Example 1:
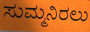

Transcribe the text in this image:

ಸುಮ್ಮನಿರಲು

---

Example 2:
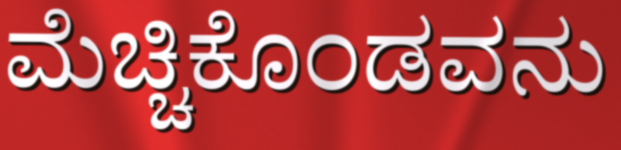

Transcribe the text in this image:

ಮೆಚ್ಚಿಕೊಂಡವನು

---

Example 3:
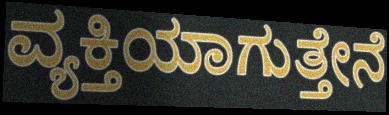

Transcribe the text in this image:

ವ್ಯಕ್ತಿಯಾಗುತ್ತೇನೆ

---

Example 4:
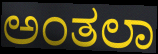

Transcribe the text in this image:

ಅಂತಲಾ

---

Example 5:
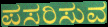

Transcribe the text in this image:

ಪಸರಿಸುವ